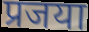
प्रजया